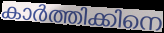
കാർത്തിക്കിനെ